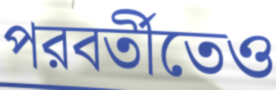
পরবর্তীতেও